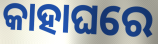
କାହାଘରେ